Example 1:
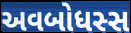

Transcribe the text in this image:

અવબોધસ્સ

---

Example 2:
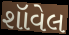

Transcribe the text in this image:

શૉવેલ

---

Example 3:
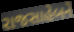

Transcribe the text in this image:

રાજસાહેબને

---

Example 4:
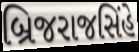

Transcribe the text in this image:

બ્રિજરાજસિંહે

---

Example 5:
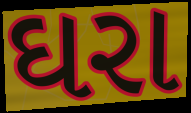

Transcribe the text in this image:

ઘરા